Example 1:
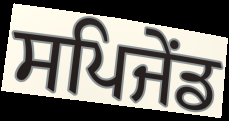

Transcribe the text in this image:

ਸਪਿਜੇਂਡ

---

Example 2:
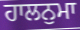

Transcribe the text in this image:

ਹਾਲਨੁਮਾ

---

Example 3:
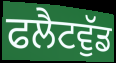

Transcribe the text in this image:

ਫਲੈਟਵੁੱਡ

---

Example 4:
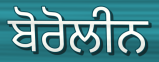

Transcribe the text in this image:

ਬੋਰੋਲੀਨ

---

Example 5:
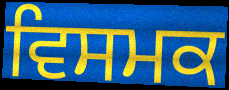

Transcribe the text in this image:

ਵਿਸਮਕ